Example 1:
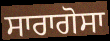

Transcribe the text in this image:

ਸਾਰਾਗੋਸਾ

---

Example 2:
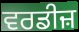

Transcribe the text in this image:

ਵਰਡੀਜ਼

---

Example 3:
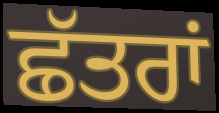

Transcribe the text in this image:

ਛੱਤਰਾਂ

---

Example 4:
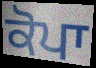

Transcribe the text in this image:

ਕੋਪਾ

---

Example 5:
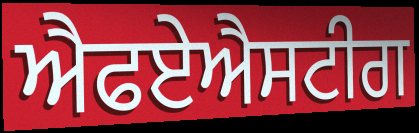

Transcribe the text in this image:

ਐਫਏਐਸਟੀਗ